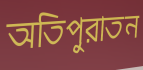
অতিপুরাতন